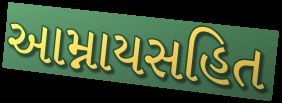
આમ્નાયસહિત